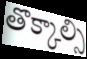
తొక్కాల్సి